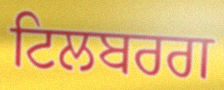
ਟਿਲਬਰਗ